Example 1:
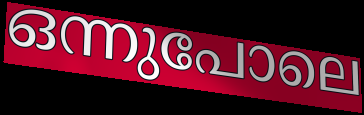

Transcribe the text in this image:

ഒന്നുപോലെ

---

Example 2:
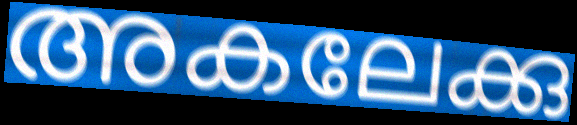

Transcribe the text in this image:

അകലേക്കു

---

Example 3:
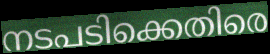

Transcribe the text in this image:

നടപടിക്കെതിരെ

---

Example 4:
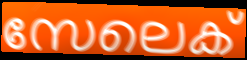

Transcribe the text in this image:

സേലെക്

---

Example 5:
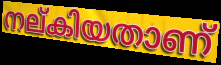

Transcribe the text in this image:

നല്കിയതാണ്